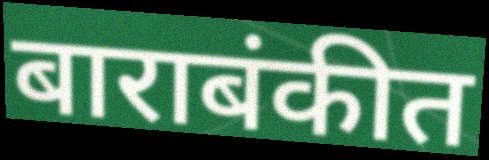
बाराबंकीत